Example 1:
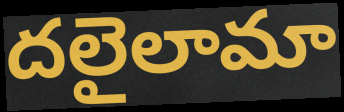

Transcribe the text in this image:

దలైలామా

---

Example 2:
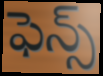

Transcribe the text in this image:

ఫెన్స్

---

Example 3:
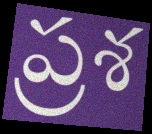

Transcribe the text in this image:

ప్రశ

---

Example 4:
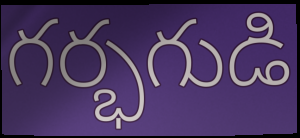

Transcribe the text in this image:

గర్భగుడి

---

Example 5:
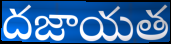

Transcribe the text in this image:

దజాయత